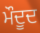
ਮੌਦੂਦ